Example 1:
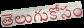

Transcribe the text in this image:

తెలుగుకోసం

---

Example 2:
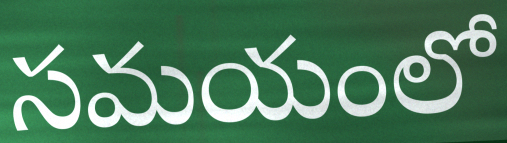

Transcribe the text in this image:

సమయంలో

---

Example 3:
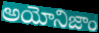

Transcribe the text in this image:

అయోనిజాం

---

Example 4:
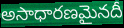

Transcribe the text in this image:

అసాధారణమైనదీ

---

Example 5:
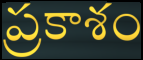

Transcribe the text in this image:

ప్రకాశం